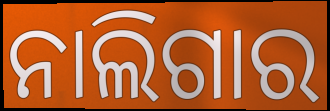
ନାଲିଗାର